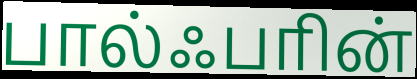
பால்ஃபரின்